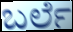
ಬರ್ಲೆ